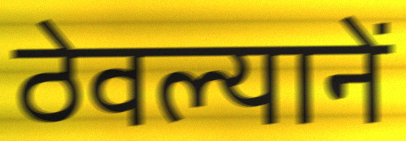
ठेवल्यानें